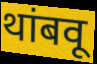
थांबवू